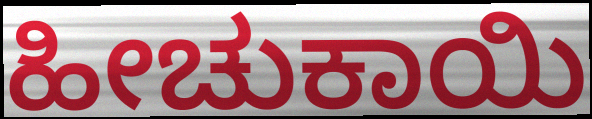
ಹೀಚುಕಾಯಿ